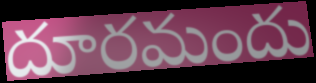
దూరమందు